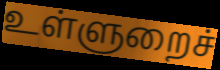
உள்ளுறைச்